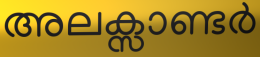
അലക്സാണ്ടർ